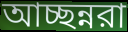
আচ্ছন্নরা